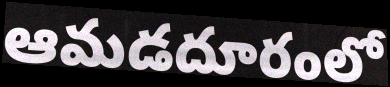
ఆమడదూరంలో